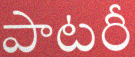
పాటరీ